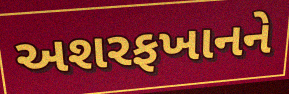
અશરફખાનને